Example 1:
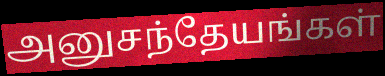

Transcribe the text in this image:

அனுசந்தேயங்கள்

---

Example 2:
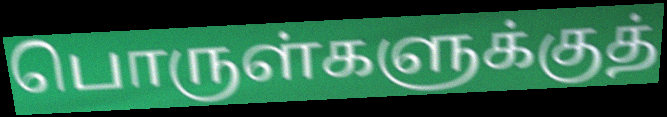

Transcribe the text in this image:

பொருள்களுக்குத்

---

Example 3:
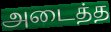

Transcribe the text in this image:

அடைத்த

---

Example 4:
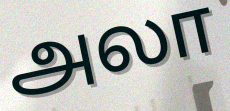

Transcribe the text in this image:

அலா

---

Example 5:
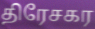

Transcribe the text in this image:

திரேசகர